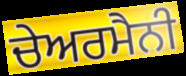
ਚੇਅਰਮੈਨੀ